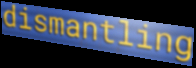
dismantling